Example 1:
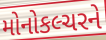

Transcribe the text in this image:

મોનોકલ્ચરને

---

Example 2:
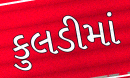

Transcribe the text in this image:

કુલડીમાં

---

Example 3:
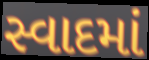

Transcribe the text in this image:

સ્વાદમાં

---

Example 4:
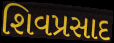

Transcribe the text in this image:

શિવપ્રસાદ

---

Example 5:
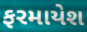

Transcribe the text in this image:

ફરમાયેશ